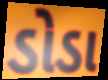
ડોડા